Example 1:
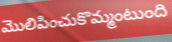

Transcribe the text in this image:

మొలిపించుకొమ్మంటుంది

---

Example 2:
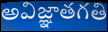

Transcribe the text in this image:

అవిజ్ఞాతగతి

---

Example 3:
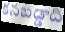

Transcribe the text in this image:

కనబడ్డాది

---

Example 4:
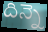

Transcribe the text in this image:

దిన్నె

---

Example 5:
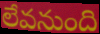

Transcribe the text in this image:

లేవనుంది